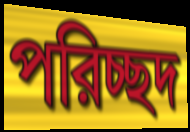
পরিচ্ছদ